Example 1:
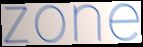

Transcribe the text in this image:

zone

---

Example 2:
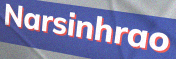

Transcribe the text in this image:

Narsinhrao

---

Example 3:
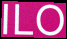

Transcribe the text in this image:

ILO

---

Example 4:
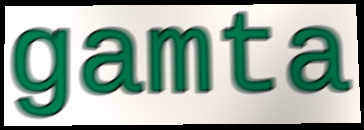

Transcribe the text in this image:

gamta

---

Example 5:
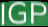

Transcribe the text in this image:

IGP